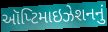
ઑપ્ટિમાઇઝેશનનું